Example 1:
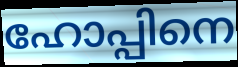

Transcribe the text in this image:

ഹോപ്പിനെ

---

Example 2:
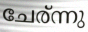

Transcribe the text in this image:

ചേര്ന്നു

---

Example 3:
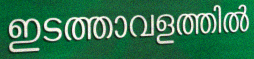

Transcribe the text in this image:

ഇടത്താവളത്തിൽ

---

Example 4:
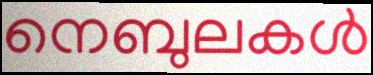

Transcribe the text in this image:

നെബുലകൾ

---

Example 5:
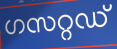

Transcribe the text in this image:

ഗസറ്റഡ്